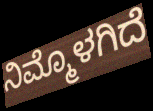
ನಿಮ್ಮೊಳಗಿದೆ